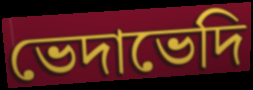
ভেদাভেদি